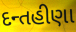
દન્તહીણા